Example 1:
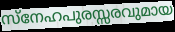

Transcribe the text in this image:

സ്നേഹപുരസ്സരവുമായ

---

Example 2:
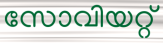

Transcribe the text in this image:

സോവിയറ്റ്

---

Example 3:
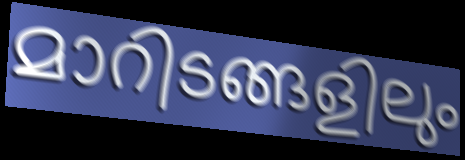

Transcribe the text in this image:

മാറിടങ്ങളിലും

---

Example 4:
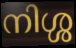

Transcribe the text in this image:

നിശ്ശ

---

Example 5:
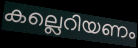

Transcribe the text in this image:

കല്ലെറിയണം